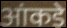
आंकडे